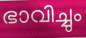
ഭാവിച്ചും